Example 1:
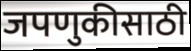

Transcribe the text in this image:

जपणुकीसाठी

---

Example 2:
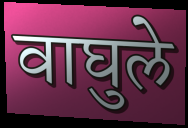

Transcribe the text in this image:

वाघुले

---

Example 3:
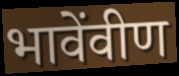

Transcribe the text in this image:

भावेंवीण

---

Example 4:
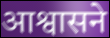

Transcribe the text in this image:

आश्वासने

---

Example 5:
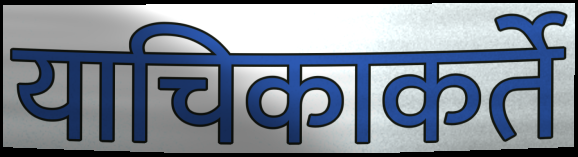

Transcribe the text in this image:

याचिकाकर्ते